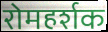
रोमहर्शक